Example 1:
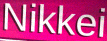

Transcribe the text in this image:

Nikkei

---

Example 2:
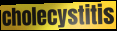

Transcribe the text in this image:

cholecystitis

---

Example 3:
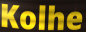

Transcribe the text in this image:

Kolhe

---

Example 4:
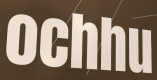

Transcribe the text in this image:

ochhu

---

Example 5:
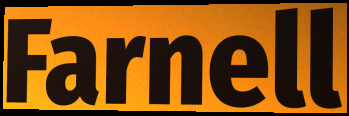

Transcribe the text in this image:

Farnell